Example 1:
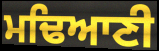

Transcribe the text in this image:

ਮਢਿਆਣੀ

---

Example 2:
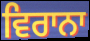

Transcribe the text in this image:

ਵਿਰਾਨਾ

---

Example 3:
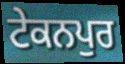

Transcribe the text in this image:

ਟੇਕਨਪੁਰ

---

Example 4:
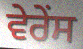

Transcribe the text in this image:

ਵੇਰੇਂਸ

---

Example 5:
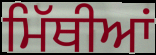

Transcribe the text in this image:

ਮਿੱਥੀਆਂ